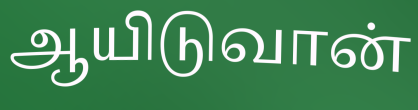
ஆயிடுவான்